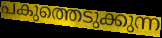
പകുത്തെടുക്കുന്ന